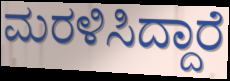
ಮರಳಿಸಿದ್ದಾರೆ